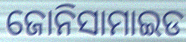
ଜୋନିସାମାଇଡ